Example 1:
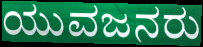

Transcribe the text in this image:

ಯುವಜನರು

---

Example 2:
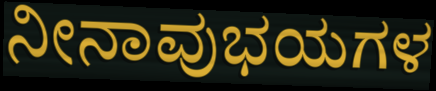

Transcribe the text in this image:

ನೀನಾವುಭಯಗಳ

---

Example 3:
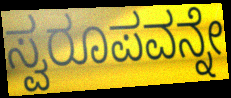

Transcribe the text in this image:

ಸ್ವರೂಪವನ್ನೇ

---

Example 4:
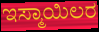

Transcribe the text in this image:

ಇಸ್ಮಾಯಿಲರ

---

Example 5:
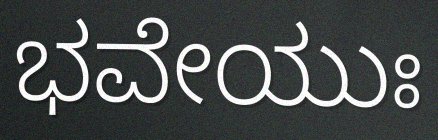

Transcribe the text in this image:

ಭವೇಯುಃ